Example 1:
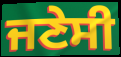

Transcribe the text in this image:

ਜਣੇਸੀ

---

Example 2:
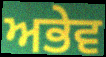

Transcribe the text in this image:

ਅਭੇਵ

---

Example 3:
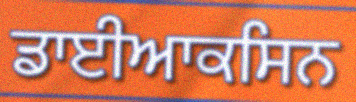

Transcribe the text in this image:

ਡਾਈਆਕਸਿਨ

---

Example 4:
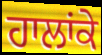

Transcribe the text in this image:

ਹਾਲਾਂਕੇ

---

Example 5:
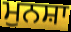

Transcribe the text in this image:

ਮੁਨਸ਼ਾ